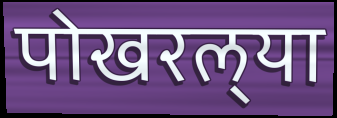
पोखरल्या